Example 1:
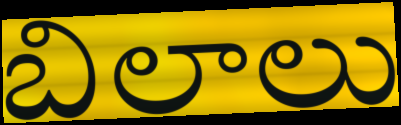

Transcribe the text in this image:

బిలాలు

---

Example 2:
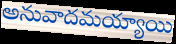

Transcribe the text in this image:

అనువాదమయ్యాయి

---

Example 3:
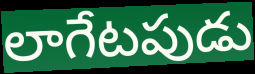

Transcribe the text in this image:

లాగేటపుడు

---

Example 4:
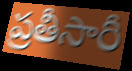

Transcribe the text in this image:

ప్రతీసారీ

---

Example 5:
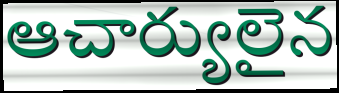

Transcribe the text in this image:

ఆచార్యులైన